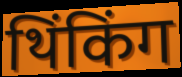
थिंकिंग